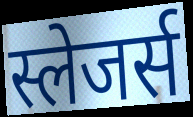
स्लेजर्स